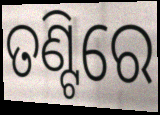
ତଣ୍ଟିରେ